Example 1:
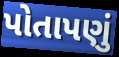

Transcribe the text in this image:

પોતાપણું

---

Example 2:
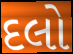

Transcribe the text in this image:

દલો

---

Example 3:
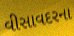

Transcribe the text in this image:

વીસાવદરના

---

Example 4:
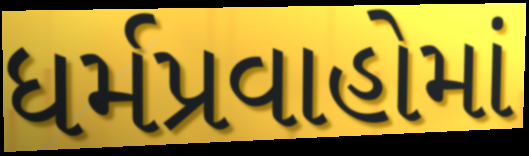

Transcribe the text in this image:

ધર્મપ્રવાહોમાં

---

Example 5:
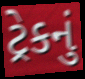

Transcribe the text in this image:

ટ્રેકનું